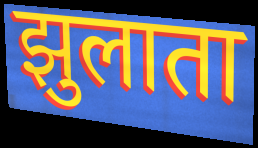
झुलाता